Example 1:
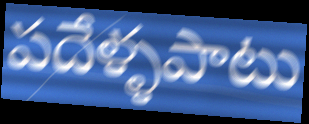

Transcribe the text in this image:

పదేళ్ళపాటు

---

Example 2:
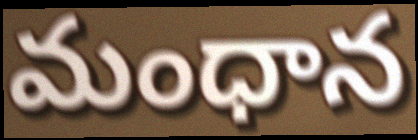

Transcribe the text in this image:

మంధాన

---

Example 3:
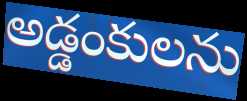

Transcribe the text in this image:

అడ్డంకులను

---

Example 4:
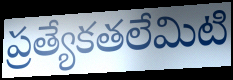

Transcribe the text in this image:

ప్రత్యేకతలేమిటి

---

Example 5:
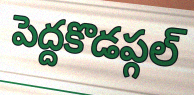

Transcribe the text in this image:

పెద్దకొడప్గల్